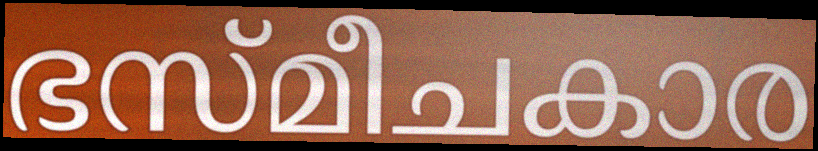
ഭസ്മീചകാര